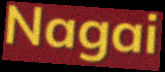
Nagai